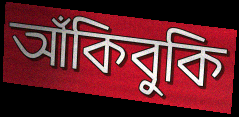
আঁকিবুকি